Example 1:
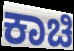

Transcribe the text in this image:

ಕಾಚಿ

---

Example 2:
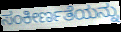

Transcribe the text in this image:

ಸಂಕೀರ್ಣತೆಯನ್ನು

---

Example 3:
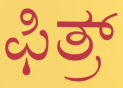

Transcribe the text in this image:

ಫಿತ್ರ್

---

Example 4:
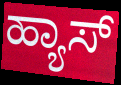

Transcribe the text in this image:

ಹ್ಯಾಸ್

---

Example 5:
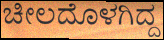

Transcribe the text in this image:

ಚೀಲದೊಳಗಿದ್ದ